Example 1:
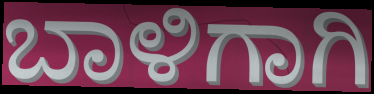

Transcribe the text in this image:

ಬಾಳಿಗಾಗಿ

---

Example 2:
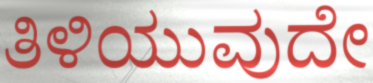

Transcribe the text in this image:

ತಿಳಿಯುವುದೇ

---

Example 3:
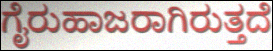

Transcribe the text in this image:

ಗೈರುಹಾಜರಾಗಿರುತ್ತದೆ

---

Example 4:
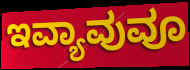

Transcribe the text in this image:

ಇವ್ಯಾವುವೂ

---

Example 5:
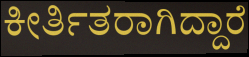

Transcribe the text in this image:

ಕೀರ್ತಿತರಾಗಿದ್ದಾರೆ